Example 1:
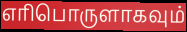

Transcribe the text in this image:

எரிபொருளாகவும்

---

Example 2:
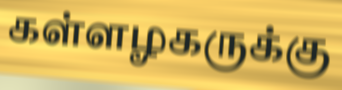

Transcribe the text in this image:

கள்ளழகருக்கு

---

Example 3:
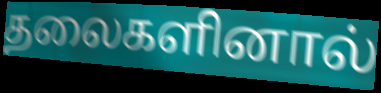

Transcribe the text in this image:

தலைகளினால்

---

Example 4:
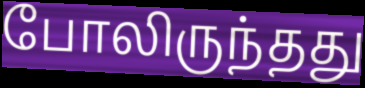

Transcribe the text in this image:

போலிருந்தது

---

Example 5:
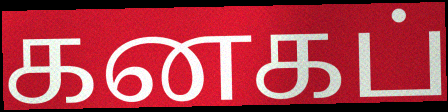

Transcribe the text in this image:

கனகப்